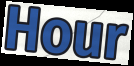
Hour